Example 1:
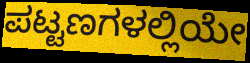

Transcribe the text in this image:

ಪಟ್ಟಣಗಳಲ್ಲಿಯೇ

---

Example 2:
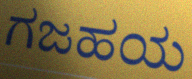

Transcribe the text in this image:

ಗಜಹಯ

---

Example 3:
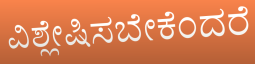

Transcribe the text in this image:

ವಿಶ್ಲೇಷಿಸಬೇಕೆಂದರೆ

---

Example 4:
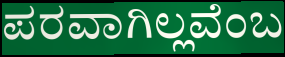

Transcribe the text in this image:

ಪರವಾಗಿಲ್ಲವೆಂಬ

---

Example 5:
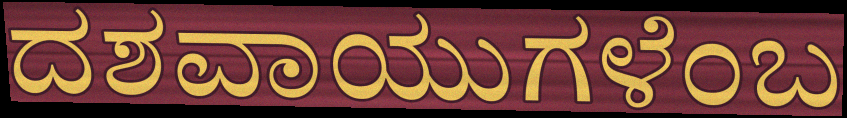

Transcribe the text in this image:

ದಶವಾಯುಗಳೆಂಬ